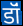
डॉं